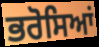
ਭਰੋਸਿਆਂ